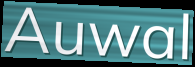
Auwal